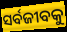
ସର୍ବଜୀବକୁ